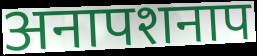
अनापशनाप